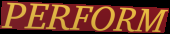
PERFORM